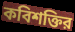
কবিশক্তির